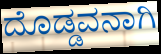
ದೊಡ್ಡವನಾಗಿ